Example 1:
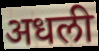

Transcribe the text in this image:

अधली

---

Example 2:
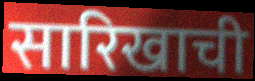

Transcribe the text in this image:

सारिखाची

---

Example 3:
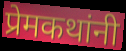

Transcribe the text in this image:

प्रेमकथांनी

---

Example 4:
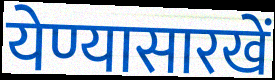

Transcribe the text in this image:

येण्यासारखें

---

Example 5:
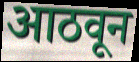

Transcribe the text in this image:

आठवून